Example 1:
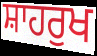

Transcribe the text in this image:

ਸ਼ਾਹਰੁਖ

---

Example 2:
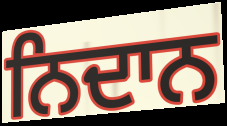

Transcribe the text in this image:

ਨਿਦਾਨ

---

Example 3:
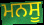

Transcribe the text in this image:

ਮਨਸੂ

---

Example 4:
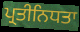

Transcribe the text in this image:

ਪ੍ਰਤੀਨਿਧਤਾ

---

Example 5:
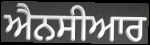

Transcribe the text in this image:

ਐਨਸੀਆਰ